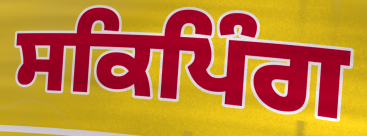
ਸਕਿਪਿੰਗ